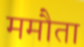
ममौता